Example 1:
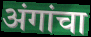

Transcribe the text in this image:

अंगांचा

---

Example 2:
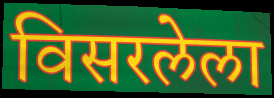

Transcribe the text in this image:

विसरलेला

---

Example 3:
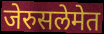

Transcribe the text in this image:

जेरुसलेमेत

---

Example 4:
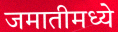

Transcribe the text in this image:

जमातीमध्ये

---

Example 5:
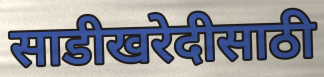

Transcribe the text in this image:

साडीखरेदीसाठी